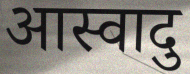
आस्वादु